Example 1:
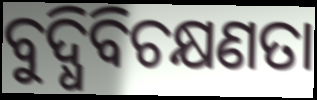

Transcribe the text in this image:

ବୁଦ୍ଧିବିଚକ୍ଷଣତା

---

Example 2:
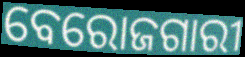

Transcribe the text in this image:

ବେରୋଜଗାରୀ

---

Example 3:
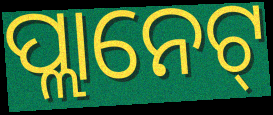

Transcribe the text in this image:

ପ୍ଲାନେଟ୍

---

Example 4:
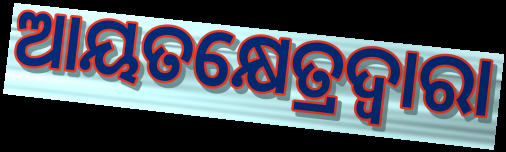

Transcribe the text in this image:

ଆୟତକ୍ଷେତ୍ରଦ୍ଵାରା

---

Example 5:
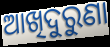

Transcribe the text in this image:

ଆଖିଦୁରୁଣା